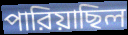
পারিয়াছিল